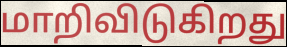
மாறிவிடுகிறது